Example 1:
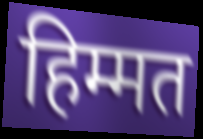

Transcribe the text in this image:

हिम्मत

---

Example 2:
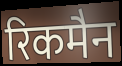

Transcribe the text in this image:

रिकमैन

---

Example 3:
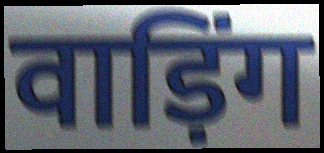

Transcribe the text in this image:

वाड़िंग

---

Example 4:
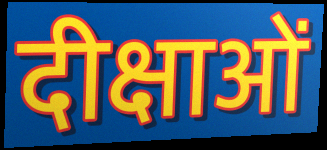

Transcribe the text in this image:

दीक्षाओं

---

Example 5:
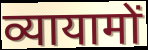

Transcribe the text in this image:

व्यायामों